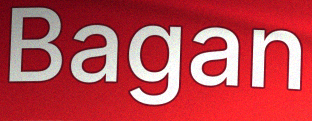
Bagan